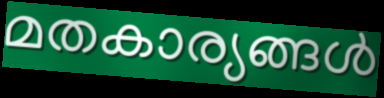
മതകാര്യങ്ങൾ